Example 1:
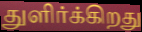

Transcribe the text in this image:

துளிர்க்கிறது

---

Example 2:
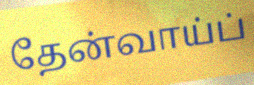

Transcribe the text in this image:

தேன்வாய்ப்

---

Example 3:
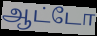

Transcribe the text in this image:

ஆட்டோ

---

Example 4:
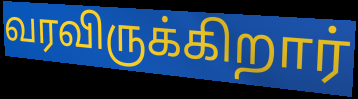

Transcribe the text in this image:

வரவிருக்கிறார்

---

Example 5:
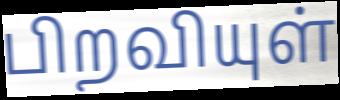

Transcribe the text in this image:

பிறவியுள்